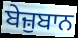
ਬੇਜ਼ੁਬਾਨ